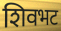
शिवभट